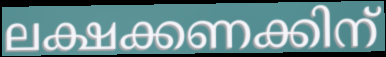
ലക്ഷക്കണക്കിന്